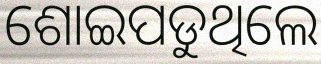
ଶୋଇପଡୁଥିଲେ